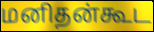
மனிதன்கூட